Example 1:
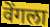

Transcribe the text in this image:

वेंगला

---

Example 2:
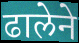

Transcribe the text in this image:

ढालेने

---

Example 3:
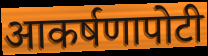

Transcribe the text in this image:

आकर्षणापोटी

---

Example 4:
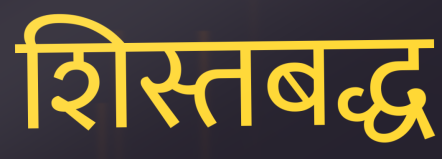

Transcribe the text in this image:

शिस्तबद्ध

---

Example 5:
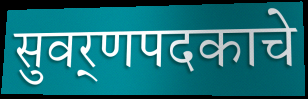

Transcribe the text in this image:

सुवर्णपदकाचे